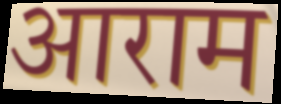
आराम